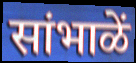
सांभाळें